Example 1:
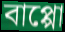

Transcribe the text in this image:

বাপ্পো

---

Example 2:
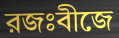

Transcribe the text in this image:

রজঃবীজে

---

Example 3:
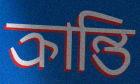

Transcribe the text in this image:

ক্রান্তি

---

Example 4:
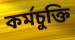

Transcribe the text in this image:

কর্মচুক্তি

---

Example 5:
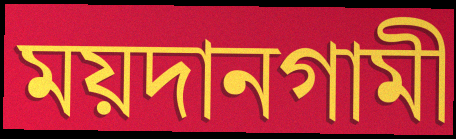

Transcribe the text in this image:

ময়দানগামী